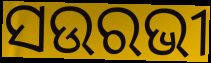
ସଉରଭୀ